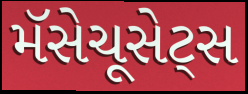
મૅસેચૂસેટ્સ